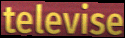
televise